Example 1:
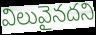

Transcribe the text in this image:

విలువైనదని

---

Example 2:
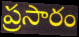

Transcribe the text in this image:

ప్రసారం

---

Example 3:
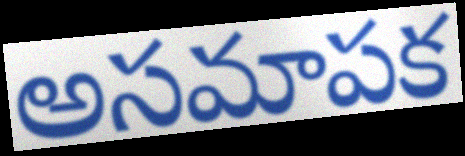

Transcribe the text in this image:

అసమాపక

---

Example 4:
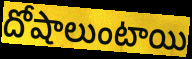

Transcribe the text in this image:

దోషాలుంటాయి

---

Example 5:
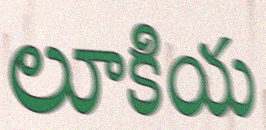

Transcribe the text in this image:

లూకియ